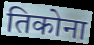
तिकोना